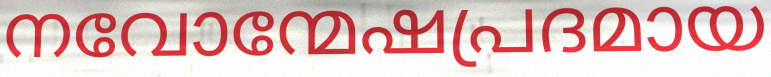
നവോന്മേഷപ്രദമായ